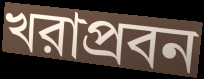
খরাপ্রবন